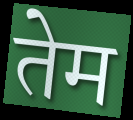
तेम